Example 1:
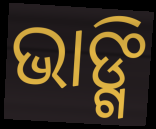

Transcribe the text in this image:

ଭାଙ୍ଗି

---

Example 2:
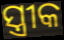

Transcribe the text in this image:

ସ୍ତ୍ରୀକ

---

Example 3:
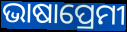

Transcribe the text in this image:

ଭାଷାପ୍ରେମୀ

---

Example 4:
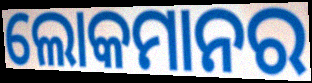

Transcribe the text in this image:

ଲୋକମାନର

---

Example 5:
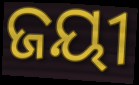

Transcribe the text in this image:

ଜୟୀ